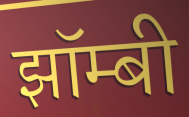
झॉम्बी